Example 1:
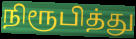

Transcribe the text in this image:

நிரூபித்து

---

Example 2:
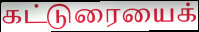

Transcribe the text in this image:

கட்டுரையைக்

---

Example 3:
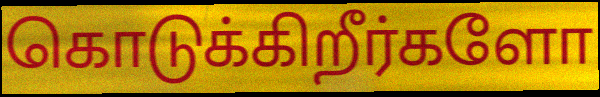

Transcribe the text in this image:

கொடுக்கிறீர்களோ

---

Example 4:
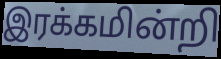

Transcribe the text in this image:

இரக்கமின்றி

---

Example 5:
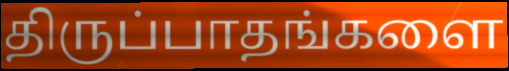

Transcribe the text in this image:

திருப்பாதங்களை